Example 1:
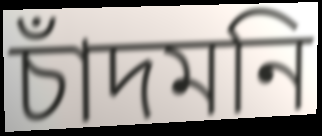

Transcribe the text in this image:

চাঁদমনি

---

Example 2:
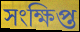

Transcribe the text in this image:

সংক্ষিপ্ত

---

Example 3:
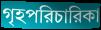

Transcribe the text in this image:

গৃহপরিচারিকা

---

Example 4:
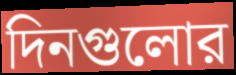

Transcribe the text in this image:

দিনগুলোর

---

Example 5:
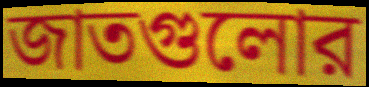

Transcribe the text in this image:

জাতগুলোর